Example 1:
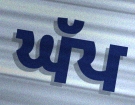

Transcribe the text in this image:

ਘੱਪ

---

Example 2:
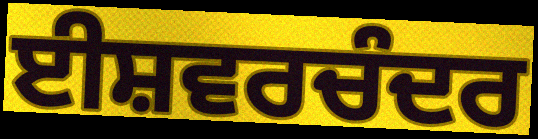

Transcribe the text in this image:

ਈਸ਼ਵਰਚੰਦਰ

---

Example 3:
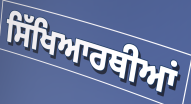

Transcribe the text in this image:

ਸਿੱਖਿਆਰਥੀਆਂ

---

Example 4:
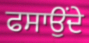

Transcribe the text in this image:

ਫਸਾਉਂਦੇ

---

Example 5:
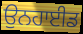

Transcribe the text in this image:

ਉਨਹਾਈਡ